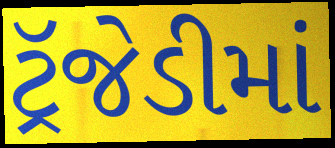
ટ્રૅજેડીમાં